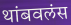
थांबवलंस